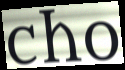
cho